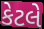
કેટલે